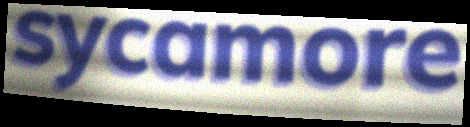
sycamore